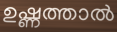
ഉഷ്ണത്താൽ